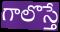
గాలొస్తే